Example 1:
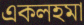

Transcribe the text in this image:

একলহমা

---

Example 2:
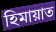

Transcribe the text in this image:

হিমায়াত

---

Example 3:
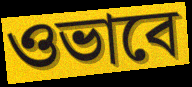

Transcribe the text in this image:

ওভাবে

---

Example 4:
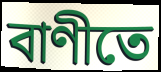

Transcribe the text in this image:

বাণীতে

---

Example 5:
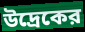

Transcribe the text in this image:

উদ্রেকের